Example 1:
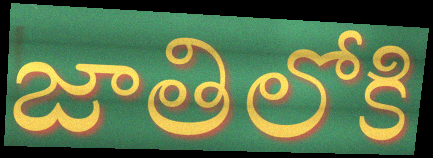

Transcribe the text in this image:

జాతిలోకి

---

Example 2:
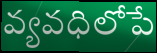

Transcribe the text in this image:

వ్యవధిలోపే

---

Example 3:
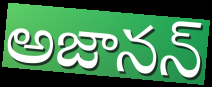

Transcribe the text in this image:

అజానన్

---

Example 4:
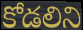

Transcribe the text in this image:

కోడలిని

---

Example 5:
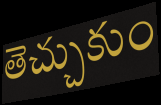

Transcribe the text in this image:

తెచ్చుకుం